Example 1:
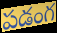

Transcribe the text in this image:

పడంగ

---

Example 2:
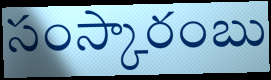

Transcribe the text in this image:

సంస్కారంబు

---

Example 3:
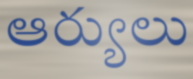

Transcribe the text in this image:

ఆర్యులు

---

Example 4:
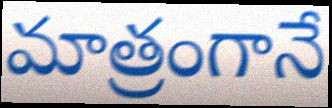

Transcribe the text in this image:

మాత్రంగానే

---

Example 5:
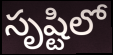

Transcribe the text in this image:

సృష్టిలో